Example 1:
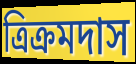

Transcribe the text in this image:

ত্রিক্রমদাস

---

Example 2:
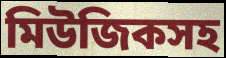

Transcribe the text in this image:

মিউজিকসহ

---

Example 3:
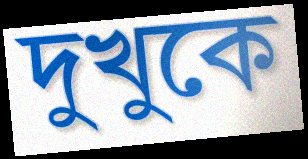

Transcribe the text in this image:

দুখুকে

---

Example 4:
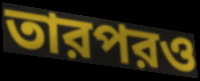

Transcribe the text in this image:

তারপরও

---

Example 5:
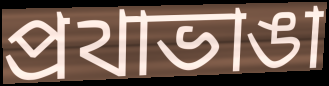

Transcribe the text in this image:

প্রথাভাঙা